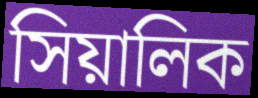
সিয়ালিক